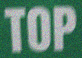
TOP